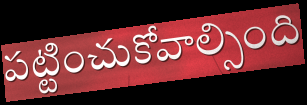
పట్టించుకోవాల్సింది